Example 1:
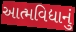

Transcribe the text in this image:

આત્મવિદ્યાનું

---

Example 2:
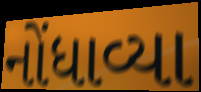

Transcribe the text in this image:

નોંધાવ્યા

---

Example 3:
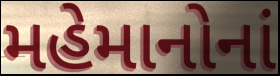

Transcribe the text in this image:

મહેમાનોનાં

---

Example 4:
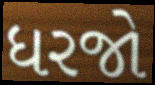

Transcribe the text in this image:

ધરજો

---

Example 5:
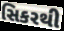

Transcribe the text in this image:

સિકરથી